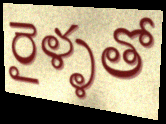
రైళ్ళతో